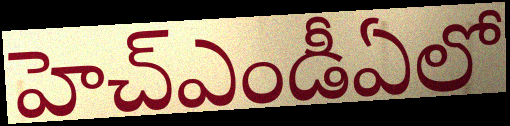
హెచ్ఎండీఏలో